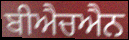
ਬੀਐਚਐਨ